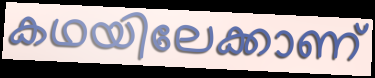
കഥയിലേക്കാണ്